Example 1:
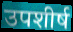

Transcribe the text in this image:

उपशीर्ष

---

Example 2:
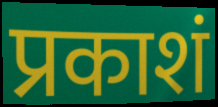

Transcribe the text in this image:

प्रकाशं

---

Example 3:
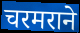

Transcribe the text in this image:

चरमराने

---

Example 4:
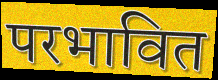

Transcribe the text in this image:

परभावित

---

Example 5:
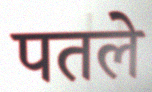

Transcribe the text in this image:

पतले